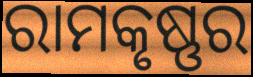
ରାମକୃଷ୍ଣର